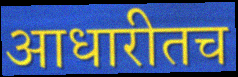
आधारीतच